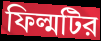
ফিল্মটির